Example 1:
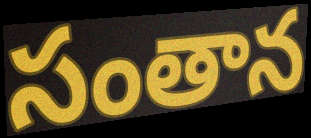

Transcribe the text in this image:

సంతాన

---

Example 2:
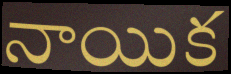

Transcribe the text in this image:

నాయిక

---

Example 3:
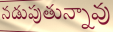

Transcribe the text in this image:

నడుపుతున్నావు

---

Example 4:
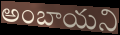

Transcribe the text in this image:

అంబాయని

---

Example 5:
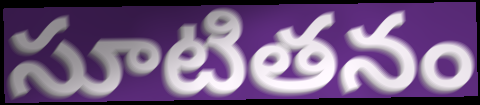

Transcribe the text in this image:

సూటితనం